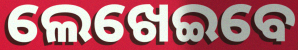
ଲେଖେଇବେ